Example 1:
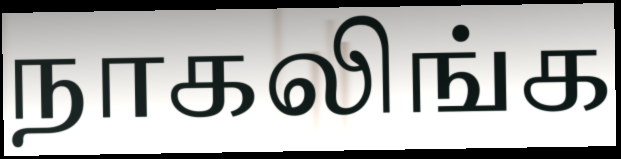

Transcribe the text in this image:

நாகலிங்க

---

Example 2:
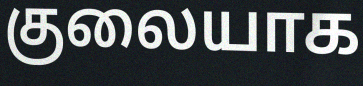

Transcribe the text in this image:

குலையாக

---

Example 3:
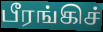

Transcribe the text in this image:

பீரங்கிச்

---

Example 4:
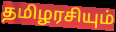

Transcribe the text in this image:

தமிழரசியும்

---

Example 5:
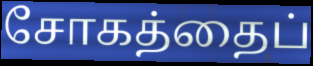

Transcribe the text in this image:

சோகத்தைப்